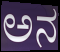
ಅನ